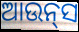
ଆଉନ୍‍ସ